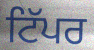
ਟਿੱਪਰ